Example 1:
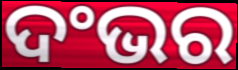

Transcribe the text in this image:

ଦଂଭର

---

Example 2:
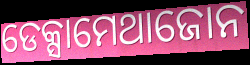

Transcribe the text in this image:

ଡେକ୍ସାମେଥାଜୋନ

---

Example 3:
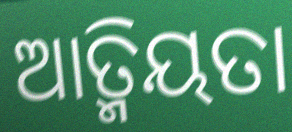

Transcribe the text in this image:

ଆତ୍ମିୟତା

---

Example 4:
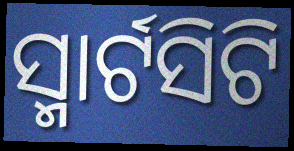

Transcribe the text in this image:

ସ୍ମାର୍ଟସିଟି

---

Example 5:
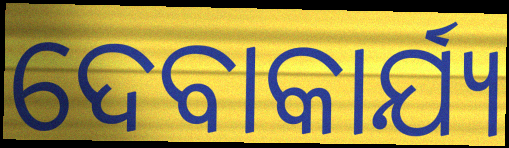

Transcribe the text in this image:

ଦେବାକାର୍ଯ୍ୟ